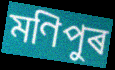
মণিপুৰ